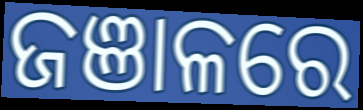
ଜଞାଳରେ